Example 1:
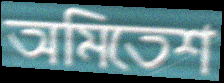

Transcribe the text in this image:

অমিতেশ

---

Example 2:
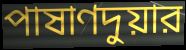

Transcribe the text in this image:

পাষাণদুয়ার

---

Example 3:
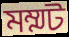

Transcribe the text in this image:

মম্মট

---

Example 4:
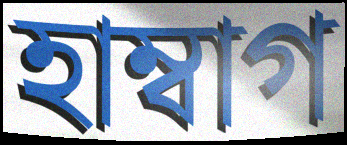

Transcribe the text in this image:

হাম্বাগ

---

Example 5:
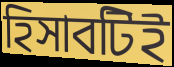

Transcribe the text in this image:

হিসাবটিই